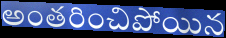
అంతరించిపోయిన